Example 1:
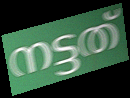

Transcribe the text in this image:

നട്ടത്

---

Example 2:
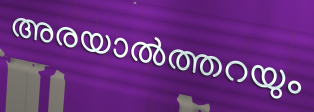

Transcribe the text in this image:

അരയാൽത്തറയും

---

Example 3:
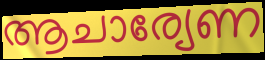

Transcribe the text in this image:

ആചാര്യേണ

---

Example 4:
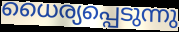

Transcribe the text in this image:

ധൈര്യപ്പെടുന്നു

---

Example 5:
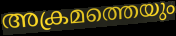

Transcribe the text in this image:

അക്രമത്തെയും